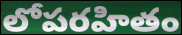
లోపరహితం